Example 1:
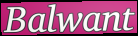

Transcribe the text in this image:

Balwant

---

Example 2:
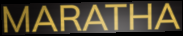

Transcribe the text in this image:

MARATHA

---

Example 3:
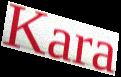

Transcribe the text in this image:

Kara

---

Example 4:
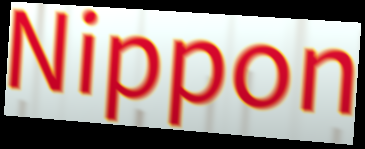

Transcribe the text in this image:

Nippon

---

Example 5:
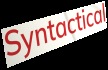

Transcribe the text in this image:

Syntactical